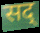
सद्